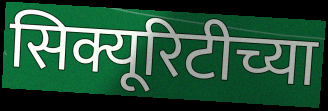
सिक्यूरिटीच्या